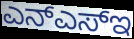
ಎನ್ಎಸ್ಇ